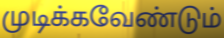
முடிக்கவேண்டும்